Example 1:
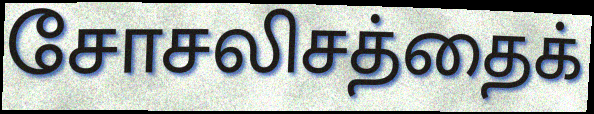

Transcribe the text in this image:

சோசலிசத்தைக்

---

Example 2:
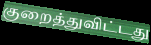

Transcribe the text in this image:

குறைத்துவிட்டது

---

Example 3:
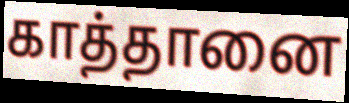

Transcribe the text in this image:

காத்தானை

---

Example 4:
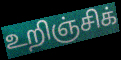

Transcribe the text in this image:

உறிஞ்சிக்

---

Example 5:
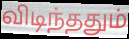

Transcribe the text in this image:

விடிந்ததும்